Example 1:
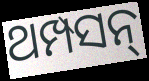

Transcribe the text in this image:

ଥମ୍ପସନ୍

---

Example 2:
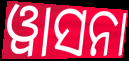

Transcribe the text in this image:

ୱାସନା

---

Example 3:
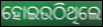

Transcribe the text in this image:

ହୋଇଉଠିଥିଲେ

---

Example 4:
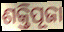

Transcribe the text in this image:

ଶକ୍ତିପୂଜା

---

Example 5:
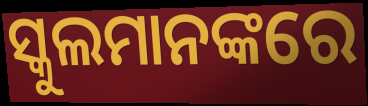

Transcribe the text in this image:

ସ୍କୁଲମାନଙ୍କରେ